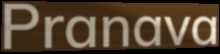
Pranava